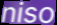
niso